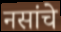
नसांचे